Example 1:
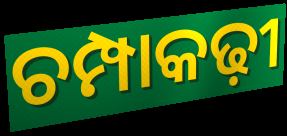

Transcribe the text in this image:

ଚମ୍ପାକଢ଼ୀ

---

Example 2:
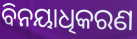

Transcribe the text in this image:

ବିନୟାଧିକରଣ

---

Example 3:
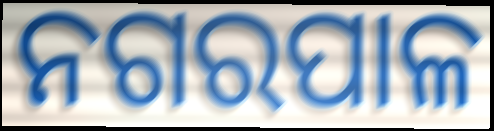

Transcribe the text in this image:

ନଗରପାଳ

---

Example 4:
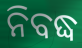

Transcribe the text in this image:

ନିବଦ୍ଧ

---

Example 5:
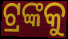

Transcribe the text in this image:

ଟ୍ରଙ୍କକୁ